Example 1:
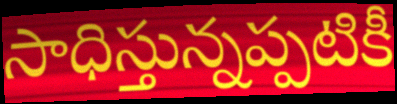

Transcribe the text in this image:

సాధిస్తున్నప్పటికీ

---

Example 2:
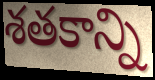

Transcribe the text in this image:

శతకాన్ని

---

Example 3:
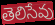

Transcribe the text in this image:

తెలిసేవు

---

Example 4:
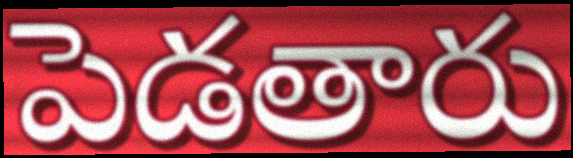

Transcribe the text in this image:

పెడతారు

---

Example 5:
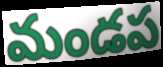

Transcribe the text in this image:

మండప